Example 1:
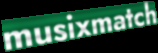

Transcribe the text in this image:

musixmatch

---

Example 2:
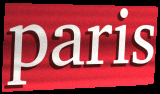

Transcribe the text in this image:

paris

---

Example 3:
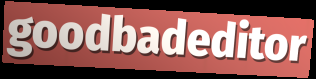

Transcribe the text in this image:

goodbadeditor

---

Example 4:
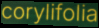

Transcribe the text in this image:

corylifolia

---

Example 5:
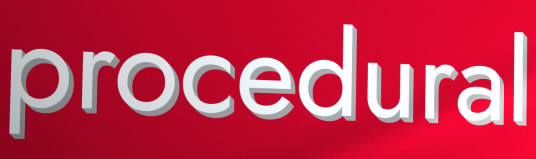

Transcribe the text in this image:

procedural